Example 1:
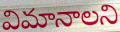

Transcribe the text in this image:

విమానాలని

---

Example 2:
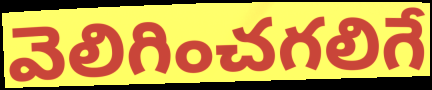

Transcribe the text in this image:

వెలిగించగలిగే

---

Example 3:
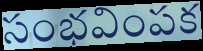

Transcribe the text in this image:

సంభవింపక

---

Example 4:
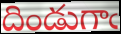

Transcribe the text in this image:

దిండుగాఁ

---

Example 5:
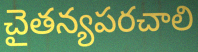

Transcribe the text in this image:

చైతన్యపరచాలి